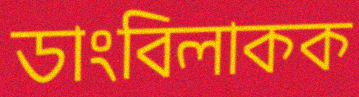
ডাংবিলাকক